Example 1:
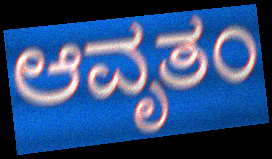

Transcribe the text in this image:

ಆವೃತಂ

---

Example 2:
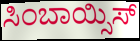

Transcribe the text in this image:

ಸಿಂಬಾಯ್ಸಿಸ್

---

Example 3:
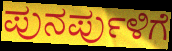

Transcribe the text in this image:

ಪುನರ್ಪುಳಿಗೆ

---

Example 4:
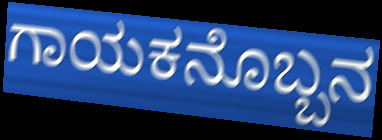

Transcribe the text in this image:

ಗಾಯಕನೊಬ್ಬನ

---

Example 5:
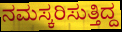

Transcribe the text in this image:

ನಮಸ್ಕರಿಸುತ್ತಿದ್ದ